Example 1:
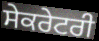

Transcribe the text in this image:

ਸੇਕਰੇਟਰੀ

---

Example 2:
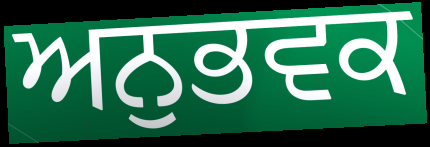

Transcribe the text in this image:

ਅਨੁਭਵਕ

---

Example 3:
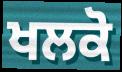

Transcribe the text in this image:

ਖਲਕੋ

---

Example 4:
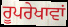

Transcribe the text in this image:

ਰੂਪਰੇਖਾਵਾਂ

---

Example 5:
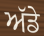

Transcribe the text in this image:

ਅੱਡੇ